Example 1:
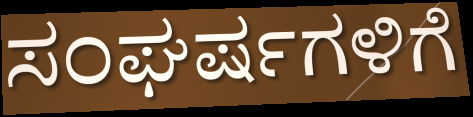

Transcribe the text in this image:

ಸಂಘರ್ಷಗಳಿಗೆ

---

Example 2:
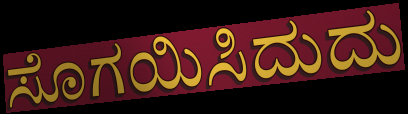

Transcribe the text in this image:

ಸೊಗಯಿಸಿದುದು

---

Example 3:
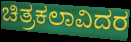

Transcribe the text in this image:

ಚಿತ್ರಕಲಾವಿದರ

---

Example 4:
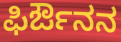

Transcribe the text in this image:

ಫಿರ್ಔನನ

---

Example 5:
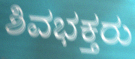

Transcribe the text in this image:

ಶಿವಭಕ್ತರು